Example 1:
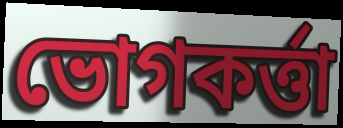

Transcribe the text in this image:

ভোগকর্ত্তা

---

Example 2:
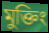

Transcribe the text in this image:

মুক্তিং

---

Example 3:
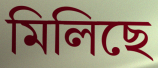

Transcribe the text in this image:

মিলিছে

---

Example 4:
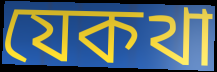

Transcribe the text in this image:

যেকথা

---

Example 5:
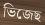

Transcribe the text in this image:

ভিজেছ